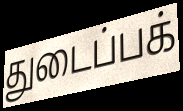
துடைப்பக்